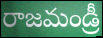
రాజమండ్రీ